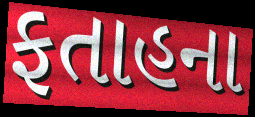
ફતાહના